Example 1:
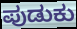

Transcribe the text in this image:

ಪುಡುಕು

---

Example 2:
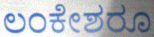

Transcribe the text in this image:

ಲಂಕೇಶರೂ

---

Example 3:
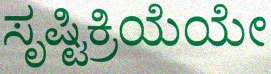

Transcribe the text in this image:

ಸೃಷ್ಟಿಕ್ರಿಯೆಯೇ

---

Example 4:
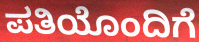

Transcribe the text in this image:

ಪತಿಯೊಂದಿಗೆ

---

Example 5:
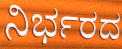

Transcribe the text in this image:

ನಿರ್ಭರದ